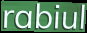
rabiul